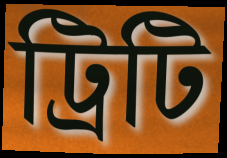
ট্রিটি